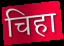
चिहा